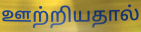
ஊற்றியதால்